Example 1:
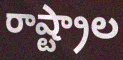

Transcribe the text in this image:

రాష్ట్రాల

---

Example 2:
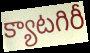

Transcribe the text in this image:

క్యాటగిరీ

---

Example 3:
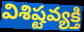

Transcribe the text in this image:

విశిష్టవ్యక్తి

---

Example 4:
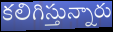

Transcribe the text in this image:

కలిగిస్తున్నారు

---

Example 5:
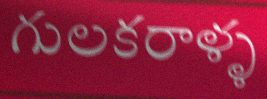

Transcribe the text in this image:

గులకరాళ్ళ